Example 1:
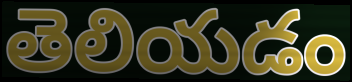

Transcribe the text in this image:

తెలియడం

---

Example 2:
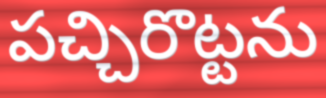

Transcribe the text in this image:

పచ్చిరొట్టను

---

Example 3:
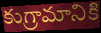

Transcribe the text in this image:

కుగ్రామానికి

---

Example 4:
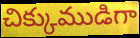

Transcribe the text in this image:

చిక్కుముడిగా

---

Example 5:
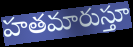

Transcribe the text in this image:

హతమారుస్తూ